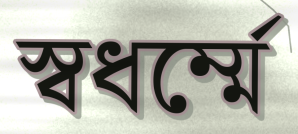
স্বধর্ম্মে